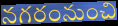
నగరంనుంచి